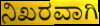
ನಿಖರವಾಗಿ